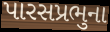
પારસપ્રભુના